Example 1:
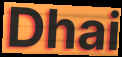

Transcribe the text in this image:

Dhai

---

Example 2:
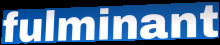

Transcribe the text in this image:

fulminant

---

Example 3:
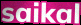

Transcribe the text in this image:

saikal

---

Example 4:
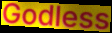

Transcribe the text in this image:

Godless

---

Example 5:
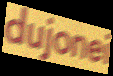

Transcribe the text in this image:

dujonei